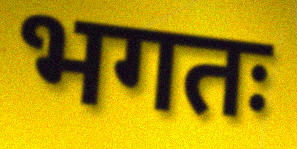
भगतः